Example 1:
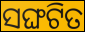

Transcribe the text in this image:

ସଙ୍ଘଟିତ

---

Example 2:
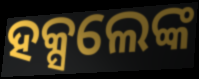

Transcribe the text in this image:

ହକ୍ସଲେଙ୍କ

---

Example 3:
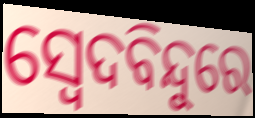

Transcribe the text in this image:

ସ୍ୱେଦବିନ୍ଦୁରେ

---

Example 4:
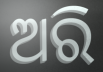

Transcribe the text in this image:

ଅରି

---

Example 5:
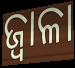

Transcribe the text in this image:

ଜ୍ୱାଳା